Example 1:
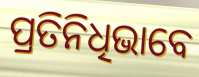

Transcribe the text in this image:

ପ୍ରତିନିଧିଭାବେ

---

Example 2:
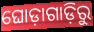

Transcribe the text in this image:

ଘୋଡ଼ାଗାଡ଼ିରୁ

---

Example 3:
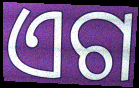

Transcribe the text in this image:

ଏଗ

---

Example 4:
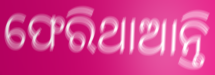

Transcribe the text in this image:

ଫେରିଥାଆନ୍ତି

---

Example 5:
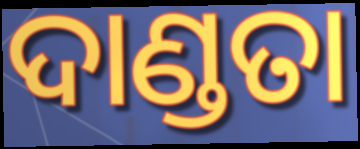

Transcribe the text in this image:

ଦାଣ୍ଡତା